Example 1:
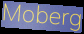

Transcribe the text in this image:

Moberg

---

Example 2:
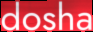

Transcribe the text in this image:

dosha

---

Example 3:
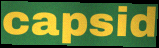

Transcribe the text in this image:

capsid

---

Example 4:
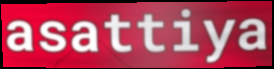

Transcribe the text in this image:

asattiya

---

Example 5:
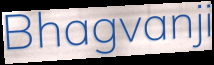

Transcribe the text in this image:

Bhagvanji